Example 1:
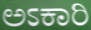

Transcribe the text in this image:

ಅಽಕಾರಿ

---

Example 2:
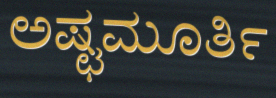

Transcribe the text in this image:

ಅಷ್ಟಮೂರ್ತಿ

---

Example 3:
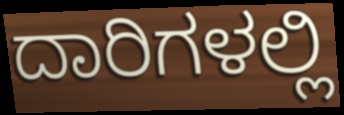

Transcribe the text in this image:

ದಾರಿಗಳಲ್ಲಿ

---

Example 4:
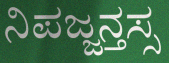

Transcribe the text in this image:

ನಿಪಜ್ಜನ್ತಸ್ಸ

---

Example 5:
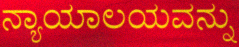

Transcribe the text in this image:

ನ್ಯಾಯಾಲಯವನ್ನು